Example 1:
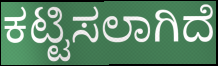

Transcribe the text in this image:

ಕಟ್ಟಿಸಲಾಗಿದೆ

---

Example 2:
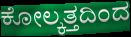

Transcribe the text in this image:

ಕೋಲ್ಕತ್ತದಿಂದ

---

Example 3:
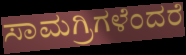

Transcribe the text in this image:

ಸಾಮಗ್ರಿಗಳೆಂದರೆ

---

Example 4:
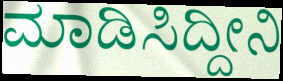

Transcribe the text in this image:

ಮಾಡಿಸಿದ್ದೀನಿ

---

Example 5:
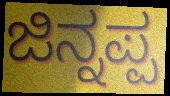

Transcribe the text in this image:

ಜಿನ್ನಪ್ಪ